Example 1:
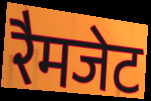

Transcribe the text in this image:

रैमजेट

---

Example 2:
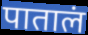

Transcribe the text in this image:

पातालं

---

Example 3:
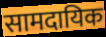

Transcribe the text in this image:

सामदायिक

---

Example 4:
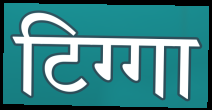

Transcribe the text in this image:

टिग्गा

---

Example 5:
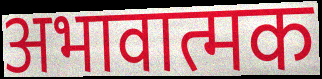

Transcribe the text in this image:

अभावात्मक